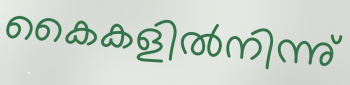
കൈകളിൽനിന്നു്